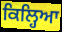
ਕਿਲ੍ਹਿਆ